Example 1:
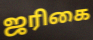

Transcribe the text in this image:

ஜரிகை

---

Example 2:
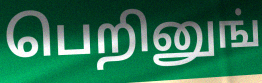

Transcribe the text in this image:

பெறினுங்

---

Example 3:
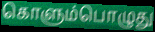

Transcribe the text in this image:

கொளும்பொழுது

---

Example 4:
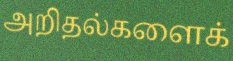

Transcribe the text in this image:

அறிதல்களைக்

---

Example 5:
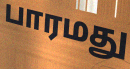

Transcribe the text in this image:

பாரமது